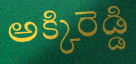
అక్కిరెడ్డి